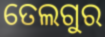
ତେଲଗୁର